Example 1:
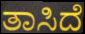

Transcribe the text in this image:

ತಾಸಿದೆ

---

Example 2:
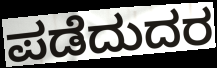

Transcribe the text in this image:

ಪಡೆದುದರ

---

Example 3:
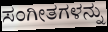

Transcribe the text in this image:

ಸಂಗೀತಗಳನ್ನು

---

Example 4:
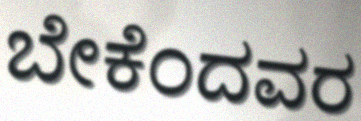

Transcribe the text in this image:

ಬೇಕೆಂದವರ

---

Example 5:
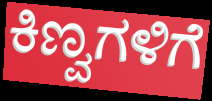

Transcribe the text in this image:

ಕಿಣ್ವಗಳಿಗೆ